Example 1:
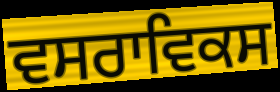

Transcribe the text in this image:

ਵਸਰਾਵਿਕਸ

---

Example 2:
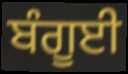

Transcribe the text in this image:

ਬੰਗੂਈ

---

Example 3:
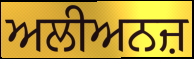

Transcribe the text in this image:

ਅਲੀਅਨਜ਼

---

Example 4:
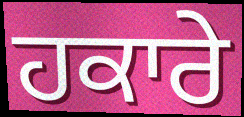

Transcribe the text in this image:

ਹਕਾਰੇ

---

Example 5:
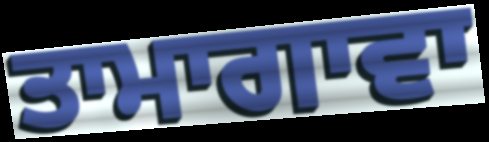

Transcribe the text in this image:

ਤਾਮਾਗਾਵਾ